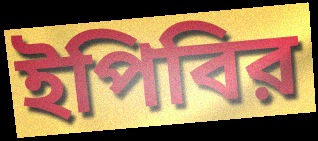
ইপিবির